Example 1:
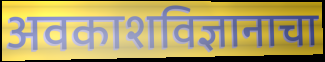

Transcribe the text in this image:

अवकाशविज्ञानाचा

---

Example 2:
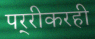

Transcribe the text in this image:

पर्रीकरही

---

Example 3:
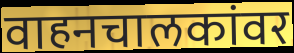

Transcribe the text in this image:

वाहनचालकांवर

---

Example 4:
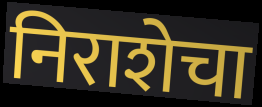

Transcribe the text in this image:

निराशेचा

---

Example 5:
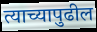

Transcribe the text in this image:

त्याच्यापुढील